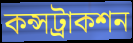
কন্সট্রাকশন